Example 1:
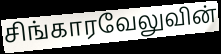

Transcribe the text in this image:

சிங்காரவேலுவின்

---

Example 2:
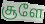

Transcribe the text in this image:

சூளே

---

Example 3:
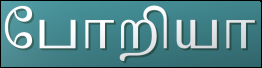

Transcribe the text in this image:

போறியா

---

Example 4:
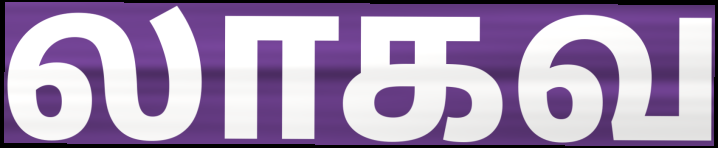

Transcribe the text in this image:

லாகவ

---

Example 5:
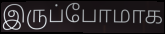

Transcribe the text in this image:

இருப்போமாக